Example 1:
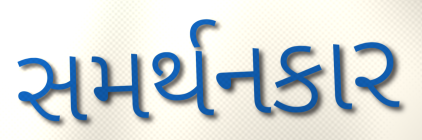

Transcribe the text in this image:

સમર્થનકાર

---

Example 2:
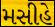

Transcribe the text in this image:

મસીહે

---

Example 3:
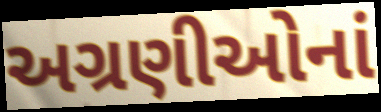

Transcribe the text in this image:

અગ્રણીઓનાં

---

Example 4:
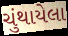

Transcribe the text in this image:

ચુંથાયેલા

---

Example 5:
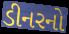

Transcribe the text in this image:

ડીનરનો